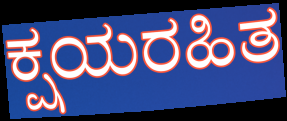
ಕ್ಷಯರಹಿತ